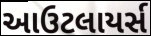
આઉટલાયર્સ